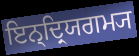
ਇਨ੍ਦ੍ਰਿਯਗਮ੍ਯ